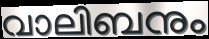
വാലിബനും